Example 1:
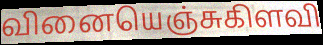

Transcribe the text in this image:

வினையெஞ்சுகிளவி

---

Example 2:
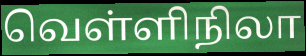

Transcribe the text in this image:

வெள்ளிநிலா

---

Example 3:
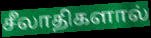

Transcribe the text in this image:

சீலாதிகளால்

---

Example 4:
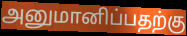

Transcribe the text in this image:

அனுமானிப்பதற்கு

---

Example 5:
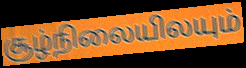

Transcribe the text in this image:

சூழ்நிலையிலயும்